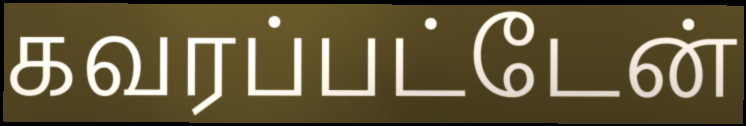
கவரப்பட்டேன்